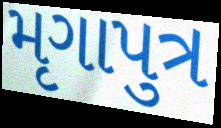
મૃગાપુત્ર